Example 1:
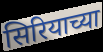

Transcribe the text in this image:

सिरियाच्या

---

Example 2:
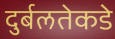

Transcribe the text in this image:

दुर्बलतेकडे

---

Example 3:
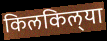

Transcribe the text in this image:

किलकिल्या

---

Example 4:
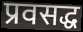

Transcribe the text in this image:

प्रवसद्ध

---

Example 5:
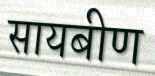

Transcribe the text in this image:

सायबीण